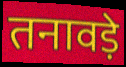
तनावड़े